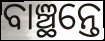
ବାଞ୍ଛନ୍ତେ